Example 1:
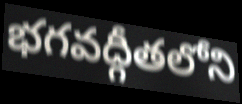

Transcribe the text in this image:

భగవద్గీతలోని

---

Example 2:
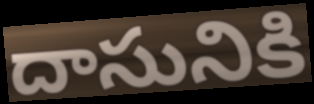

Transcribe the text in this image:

దాసునికి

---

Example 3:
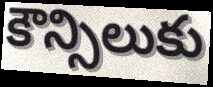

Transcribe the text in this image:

కౌన్సిలుకు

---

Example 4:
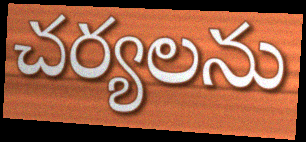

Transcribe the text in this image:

చర్యలను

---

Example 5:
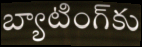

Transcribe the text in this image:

బ్యాటింగ్‌కు